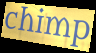
chimp